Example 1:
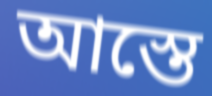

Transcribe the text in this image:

আস্তে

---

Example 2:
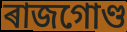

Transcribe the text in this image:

ৰাজগোণ্ড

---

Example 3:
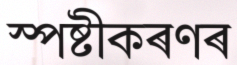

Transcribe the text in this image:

স্পষ্টীকৰণৰ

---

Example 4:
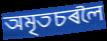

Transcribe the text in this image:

অমৃতচৰলৈ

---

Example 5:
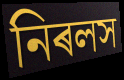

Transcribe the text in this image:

নিৰলস